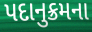
પદાનુક્રમના